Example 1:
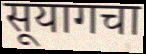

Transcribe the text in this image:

सूयागचा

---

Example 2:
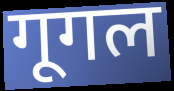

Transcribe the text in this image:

गूगल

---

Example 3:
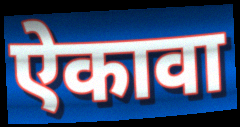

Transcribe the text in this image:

ऐकावा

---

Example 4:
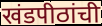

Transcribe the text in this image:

खंडपीठांची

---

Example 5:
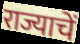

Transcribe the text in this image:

राज्याचें